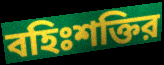
বহিঃশক্তির